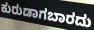
ಕುರುಡಾಗಬಾರದು